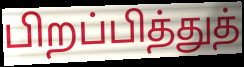
பிறப்பித்துத்